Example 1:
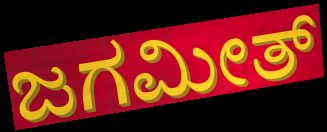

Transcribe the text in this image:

ಜಗಮೀತ್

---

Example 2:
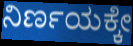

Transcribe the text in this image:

ನಿರ್ಣಯಕ್ಕೇ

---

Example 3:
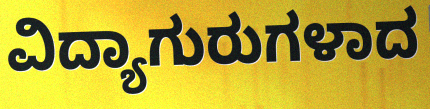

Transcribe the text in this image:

ವಿದ್ಯಾಗುರುಗಳಾದ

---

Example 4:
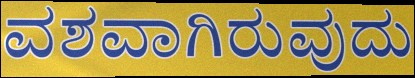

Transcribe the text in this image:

ವಶವಾಗಿರುವುದು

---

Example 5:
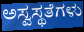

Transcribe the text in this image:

ಅಸ್ವಸ್ಥತೆಗಳು